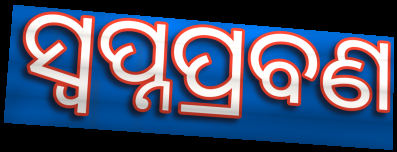
ସ୍ଵପ୍ନପ୍ରବଣ